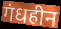
गंधहीन